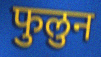
फुलुन